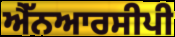
ਐੱਨਆਰਸੀਪੀ